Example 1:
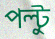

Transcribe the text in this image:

পল্টু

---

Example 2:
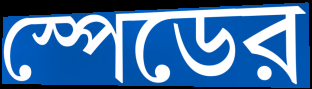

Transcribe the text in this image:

স্পেডের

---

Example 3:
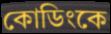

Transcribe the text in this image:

কোডিংকে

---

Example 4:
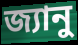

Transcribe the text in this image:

জ্যানু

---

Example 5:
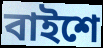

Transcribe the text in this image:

বাইশে